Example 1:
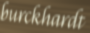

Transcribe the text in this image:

burckhardt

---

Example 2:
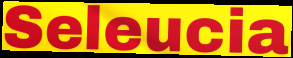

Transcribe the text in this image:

Seleucia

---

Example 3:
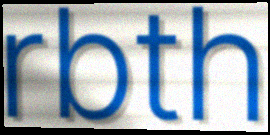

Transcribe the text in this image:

rbth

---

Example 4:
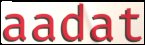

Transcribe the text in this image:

aadat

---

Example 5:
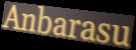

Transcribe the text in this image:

Anbarasu